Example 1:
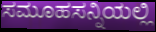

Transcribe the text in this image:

ಸಮೂಹಸನ್ನಿಯಲ್ಲಿ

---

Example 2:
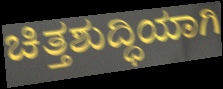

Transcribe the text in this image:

ಚಿತ್ತಶುದ್ಧಿಯಾಗಿ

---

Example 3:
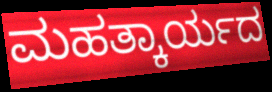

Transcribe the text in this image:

ಮಹತ್ಕಾರ್ಯದ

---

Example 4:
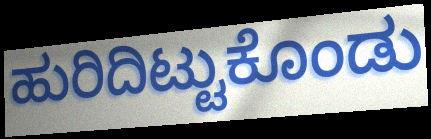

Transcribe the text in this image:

ಹುರಿದಿಟ್ಟುಕೊಂಡು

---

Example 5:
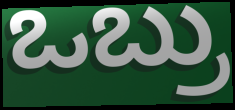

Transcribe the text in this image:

ಒಬ್ರು